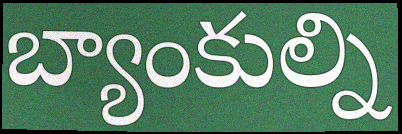
బ్యాంకుల్ని